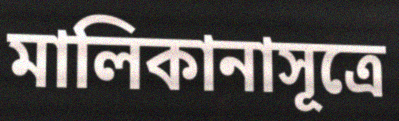
মালিকানাসূত্রে